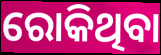
ରୋକିଥିବା